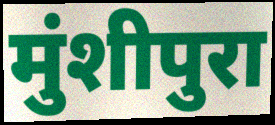
मुंशीपुरा